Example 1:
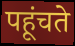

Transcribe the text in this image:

पहूंचते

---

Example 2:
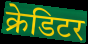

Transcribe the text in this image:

क्रेडिटर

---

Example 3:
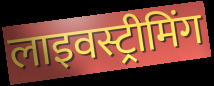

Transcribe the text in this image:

लाइवस्ट्रीमिंग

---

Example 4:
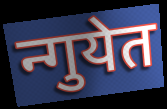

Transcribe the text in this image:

न्गुयेत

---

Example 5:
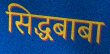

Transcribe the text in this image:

सिद्धबाबा